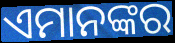
ଏମାନଙ୍କର